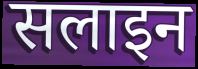
सलाइन